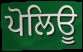
ਪੋਲਿਊ